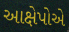
આક્ષેપોએ